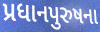
પ્રધાનપુરુષના